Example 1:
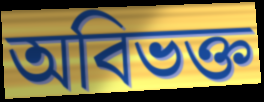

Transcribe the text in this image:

অবিভক্ত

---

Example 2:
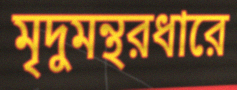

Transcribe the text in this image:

মৃদুমন্থরধারে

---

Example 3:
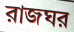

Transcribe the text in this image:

রাজঘর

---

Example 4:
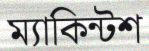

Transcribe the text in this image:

ম্যাকিন্টশ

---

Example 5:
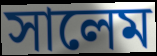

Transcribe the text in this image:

সালেম